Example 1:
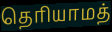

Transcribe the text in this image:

தெரியாமத்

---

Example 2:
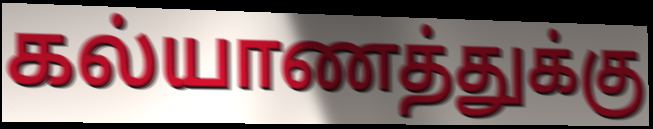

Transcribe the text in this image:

கல்யாணத்துக்கு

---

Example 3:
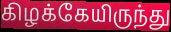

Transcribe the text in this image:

கிழக்கேயிருந்து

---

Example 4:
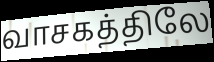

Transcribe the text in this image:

வாசகத்திலே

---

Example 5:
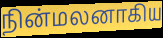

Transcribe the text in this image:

நின்மலனாகிய